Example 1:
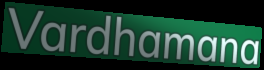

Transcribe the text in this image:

Vardhamana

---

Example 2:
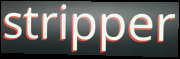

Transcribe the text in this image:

stripper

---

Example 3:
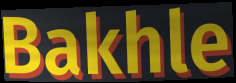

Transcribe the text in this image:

Bakhle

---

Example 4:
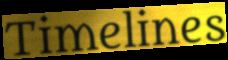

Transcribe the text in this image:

Timelines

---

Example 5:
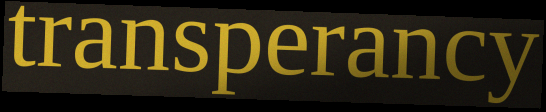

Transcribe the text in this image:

transperancy